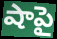
షాపై